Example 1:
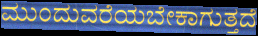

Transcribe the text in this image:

ಮುಂದುವರೆಯಬೇಕಾಗುತ್ತದೆ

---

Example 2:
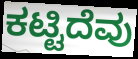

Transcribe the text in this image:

ಕಟ್ಟಿದೆವು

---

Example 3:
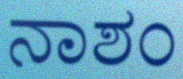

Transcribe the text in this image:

ನಾಶಂ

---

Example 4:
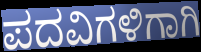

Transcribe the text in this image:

ಪದವಿಗಳಿಗಾಗಿ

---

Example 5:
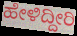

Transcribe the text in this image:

ಹೇಳಿದ್ದೀರಿ